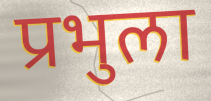
प्रभुला